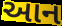
આન